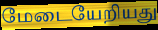
மேடையேறியது